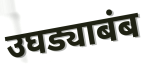
उघड्याबंब